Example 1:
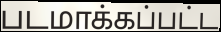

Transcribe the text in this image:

படமாக்கப்பட்ட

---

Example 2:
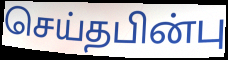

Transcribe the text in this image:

செய்தபின்பு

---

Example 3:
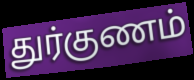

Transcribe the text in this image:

துர்குணம்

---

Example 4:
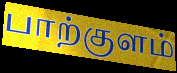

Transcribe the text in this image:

பாற்குளம்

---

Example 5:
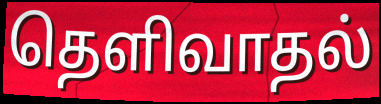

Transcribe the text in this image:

தெளிவாதல்